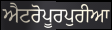
ਐਟਰੋਪੂਰਪੁਰੀਆ